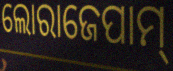
ଲୋରାଜେପାମ୍